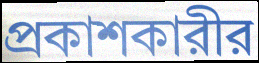
প্রকাশকারীর